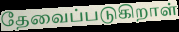
தேவைப்படுகிறாள்